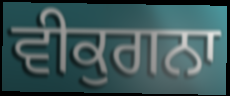
ਵੀਕੁਗਨਾ